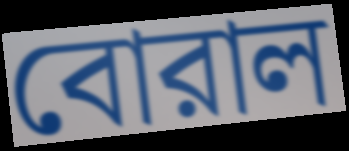
বোরাল